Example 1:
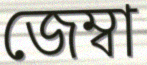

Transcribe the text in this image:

জেম্বা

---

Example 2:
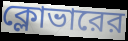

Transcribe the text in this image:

ক্লোভারের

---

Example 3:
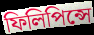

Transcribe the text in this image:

ফিলিপিন্সে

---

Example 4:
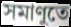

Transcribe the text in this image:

সমাণুতে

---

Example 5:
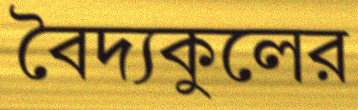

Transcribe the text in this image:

বৈদ্যকুলের